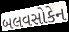
બલવસોકેન